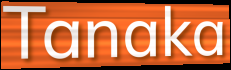
Tanaka